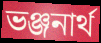
ভঞ্জনার্থ